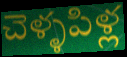
చెళ్ళపిళ్ల